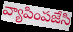
వ్యాపింపజేసి